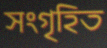
সংগৃহিত